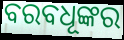
ବରବଧୂଙ୍କର